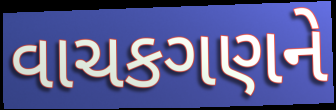
વાચકગણને